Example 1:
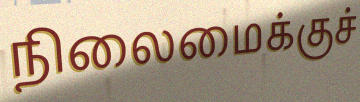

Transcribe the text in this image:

நிலைமைக்குச்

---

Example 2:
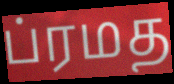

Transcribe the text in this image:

ப்ரமத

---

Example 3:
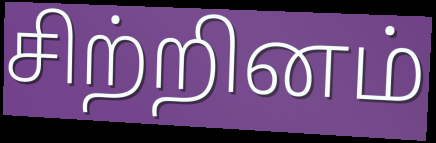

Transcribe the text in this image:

சிற்றினம்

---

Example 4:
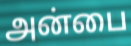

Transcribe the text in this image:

அன்பை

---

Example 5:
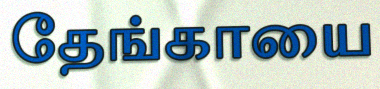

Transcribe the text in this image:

தேங்காயை